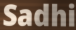
Sadhi